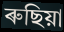
ৰুছিয়া